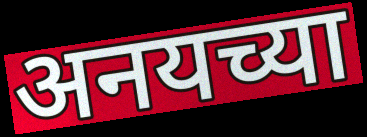
अनयच्या